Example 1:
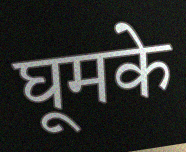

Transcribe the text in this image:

घूमके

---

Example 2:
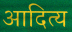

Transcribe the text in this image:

आदित्‍य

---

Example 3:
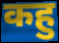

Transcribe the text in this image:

कहु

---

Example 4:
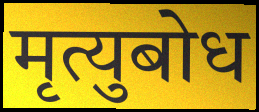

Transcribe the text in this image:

मृत्युबोध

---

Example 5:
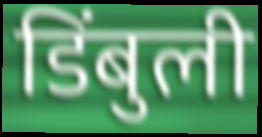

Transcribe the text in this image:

डिंबुली